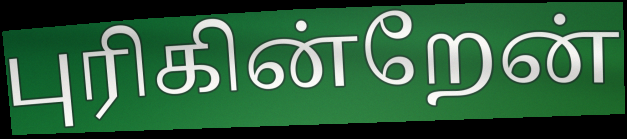
புரிகின்றேன்